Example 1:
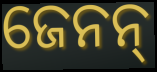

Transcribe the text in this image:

ଜେନନ୍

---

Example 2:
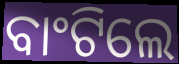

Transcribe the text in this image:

ବାଂଟିଲେ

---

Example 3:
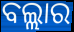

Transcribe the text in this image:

ବଲ୍ଲାର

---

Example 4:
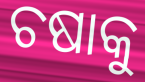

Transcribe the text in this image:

ଚଷାକୁ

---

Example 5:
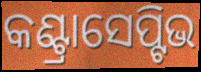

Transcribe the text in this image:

କଣ୍ଟ୍ରାସେପ୍ଟିଭ